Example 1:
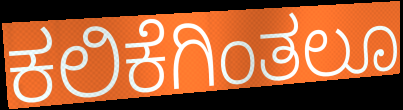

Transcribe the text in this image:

ಕಲಿಕೆಗಿಂತಲೂ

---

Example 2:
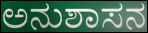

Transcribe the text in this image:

ಅನುಶಾಸನ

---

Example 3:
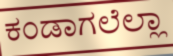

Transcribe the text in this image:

ಕಂಡಾಗಲೆಲ್ಲಾ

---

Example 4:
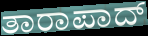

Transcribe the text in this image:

ತಾರಾಪಾದ್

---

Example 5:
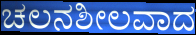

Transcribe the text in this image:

ಚಲನಶೀಲವಾದ